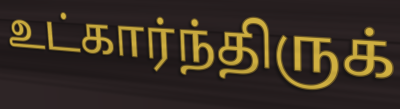
உட்கார்ந்திருக்